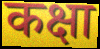
कक्षा